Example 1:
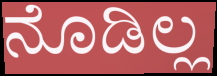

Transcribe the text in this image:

ನೊಡಿಲ್ಲ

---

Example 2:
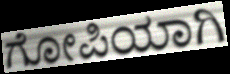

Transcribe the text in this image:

ಗೋಪಿಯಾಗಿ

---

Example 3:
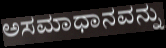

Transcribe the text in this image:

ಅಸಮಾಧಾನವನ್ನು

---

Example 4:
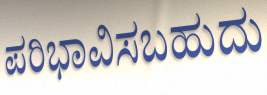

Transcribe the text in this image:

ಪರಿಭಾವಿಸಬಹುದು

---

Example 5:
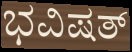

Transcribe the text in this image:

ಭವಿಷತ್